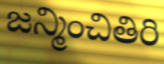
జన్మించితిరి